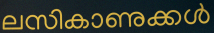
ലസികാണുക്കൾ